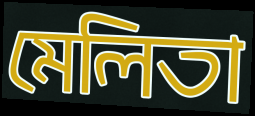
মেলিতা